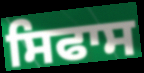
ਸਿਫਾਸ